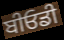
ਬੀਓਡੀ